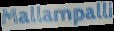
Mallampalli